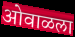
ओवाळला